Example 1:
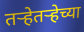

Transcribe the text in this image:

तऱ्हेतऱ्हेच्या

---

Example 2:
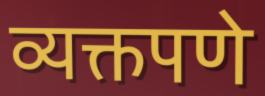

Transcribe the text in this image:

व्यक्तपणे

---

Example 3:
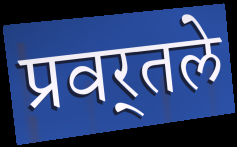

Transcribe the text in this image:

प्रवर्तले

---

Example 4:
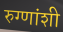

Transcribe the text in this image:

रुग्णांशी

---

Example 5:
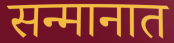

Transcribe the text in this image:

सन्मानात